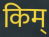
किम्